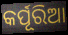
କର୍ପୂରିଆ